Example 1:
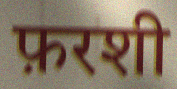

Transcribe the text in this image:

फ़रशी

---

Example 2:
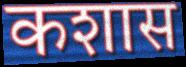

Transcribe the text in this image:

कशास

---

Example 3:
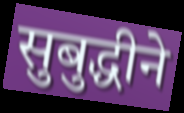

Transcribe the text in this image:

सुबुद्धीने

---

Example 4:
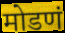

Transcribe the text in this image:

मोडणं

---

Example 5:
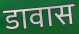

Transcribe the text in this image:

डावास